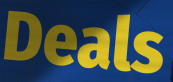
Deals